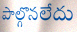
పాల్గొనలేదు